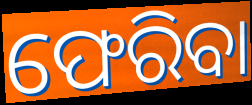
ଫେରିବା